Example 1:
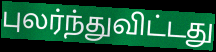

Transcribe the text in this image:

புலர்ந்துவிட்டது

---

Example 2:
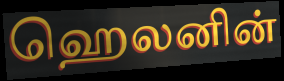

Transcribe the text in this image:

ஹெலனின்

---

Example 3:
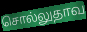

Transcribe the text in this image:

சொல்லுதாவ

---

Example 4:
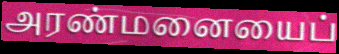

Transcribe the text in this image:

அரண்மனையைப்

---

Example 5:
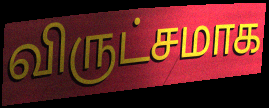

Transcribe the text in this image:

விருட்சமாக